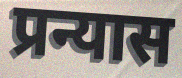
प्रन्यास